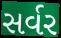
સર્વર